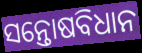
ସନ୍ତୋଷବିଧାନ